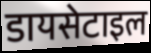
डायसेटाइल